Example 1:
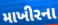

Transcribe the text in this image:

માખીરના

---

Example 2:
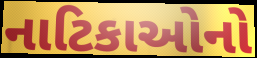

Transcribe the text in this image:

નાટિકાઓનો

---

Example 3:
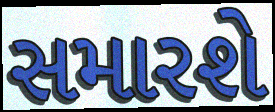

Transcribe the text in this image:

સમારશે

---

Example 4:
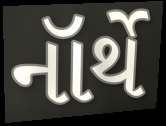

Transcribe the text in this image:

નૉર્થે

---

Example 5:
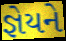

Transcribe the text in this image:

જ્ઞેયને